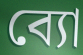
ব্যো